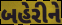
બહેરીને